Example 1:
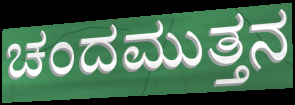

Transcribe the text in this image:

ಚಂದಮುತ್ತನ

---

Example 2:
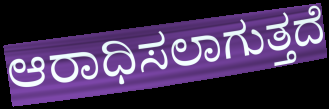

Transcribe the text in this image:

ಆರಾಧಿಸಲಾಗುತ್ತದೆ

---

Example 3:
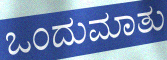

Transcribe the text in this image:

ಒಂದುಮಾತು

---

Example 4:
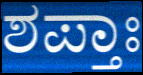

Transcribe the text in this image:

ಶಪ್ತಾಃ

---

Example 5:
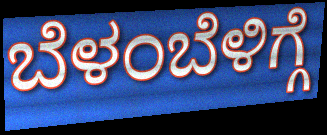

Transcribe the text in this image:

ಬೆಳಂಬೆಳಿಗ್ಗೆ